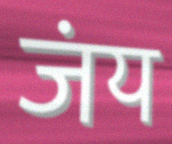
जंय